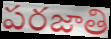
పరజాతి